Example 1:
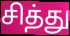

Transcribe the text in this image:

சித்து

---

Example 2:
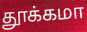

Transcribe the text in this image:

தூக்கமா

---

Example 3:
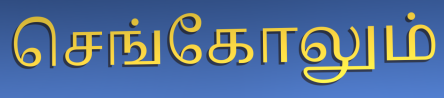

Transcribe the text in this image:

செங்கோலும்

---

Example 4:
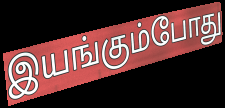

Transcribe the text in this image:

இயங்கும்போது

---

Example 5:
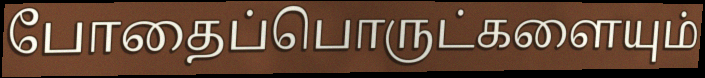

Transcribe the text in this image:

போதைப்பொருட்களையும்